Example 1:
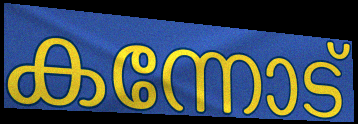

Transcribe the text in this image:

കന്നോട്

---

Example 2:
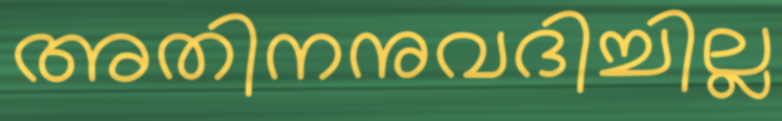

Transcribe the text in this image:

അതിനനുവദിച്ചില്ല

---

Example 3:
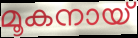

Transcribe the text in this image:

മൂകനായ്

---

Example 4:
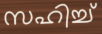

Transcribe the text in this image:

സഹിച്ച്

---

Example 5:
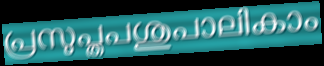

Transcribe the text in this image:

പ്രസുപ്തപശുപാലികാം